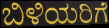
ಬಿಳಿಯರಿಗೆ